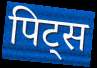
पिट्स